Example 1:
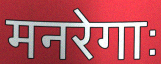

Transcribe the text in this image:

मनरेगाः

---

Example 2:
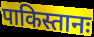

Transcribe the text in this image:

पाकिस्तानः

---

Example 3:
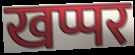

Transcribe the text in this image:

खप्पर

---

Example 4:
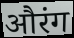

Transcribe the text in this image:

औरंग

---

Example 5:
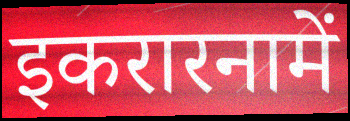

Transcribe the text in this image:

इकरारनामें